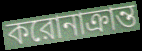
করোনাক্রান্ত